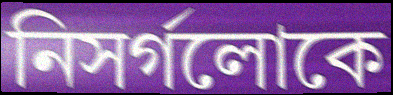
নিসর্গলোকে